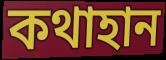
কথাহান